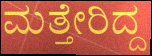
ಮತ್ತೇರಿದ್ದ